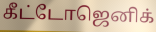
கீட்டோஜெனிக்